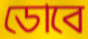
ডোবে